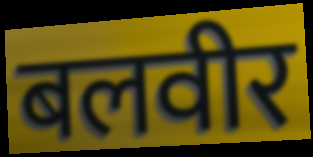
बलवीर